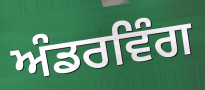
ਅੰਡਰਵਿੰਗ